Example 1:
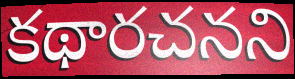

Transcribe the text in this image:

కథారచనని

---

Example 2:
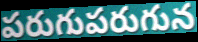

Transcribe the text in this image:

పరుగుపరుగున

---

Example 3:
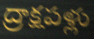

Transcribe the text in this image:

ద్రాక్షపళ్లు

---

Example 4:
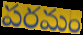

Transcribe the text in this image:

పరమం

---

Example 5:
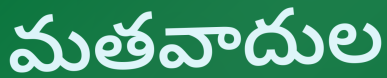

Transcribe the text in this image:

మతవాదుల